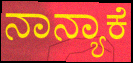
ನಾನ್ಯಾಕೆ